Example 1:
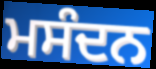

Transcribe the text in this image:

ਮਸੰਦਨ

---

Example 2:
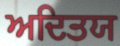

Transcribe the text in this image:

ਅਦਿਤਯ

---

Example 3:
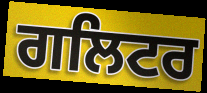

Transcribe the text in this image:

ਗਲਿਟਰ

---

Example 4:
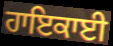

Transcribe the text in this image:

ਹਾਇਕਾਈ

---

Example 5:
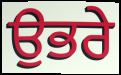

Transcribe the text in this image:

ਉਭਰੇ